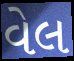
વેલ